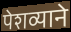
पेशव्याने